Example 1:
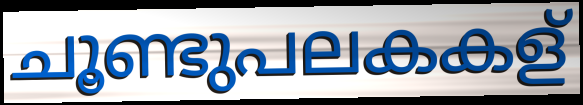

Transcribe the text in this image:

ചൂണ്ടുപലകകള്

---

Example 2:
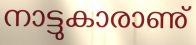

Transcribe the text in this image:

നാട്ടുകാരാണു്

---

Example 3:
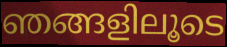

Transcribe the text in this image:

ഞങ്ങളിലൂടെ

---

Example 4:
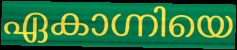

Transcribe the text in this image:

ഏകാഗ്നിയെ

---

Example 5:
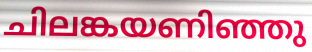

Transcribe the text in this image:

ചിലങ്കയണിഞ്ഞു